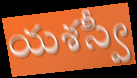
యశస్వీ